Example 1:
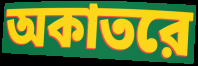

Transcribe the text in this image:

অকাতরে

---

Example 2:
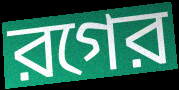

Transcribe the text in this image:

রগের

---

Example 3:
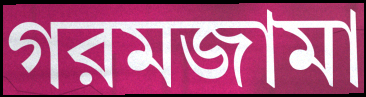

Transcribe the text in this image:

গরমজামা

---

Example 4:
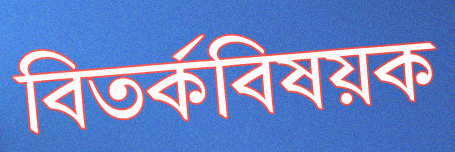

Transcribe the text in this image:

বিতর্কবিষয়ক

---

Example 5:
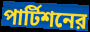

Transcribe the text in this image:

পার্টিশনের